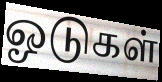
ஓடுகள்